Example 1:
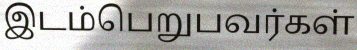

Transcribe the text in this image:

இடம்பெறுபவர்கள்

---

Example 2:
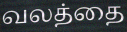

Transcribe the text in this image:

வலத்தை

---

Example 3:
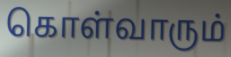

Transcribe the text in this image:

கொள்வாரும்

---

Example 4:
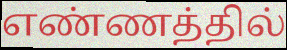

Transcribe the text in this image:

எண்ணத்தில்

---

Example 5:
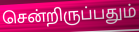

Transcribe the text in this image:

சென்றிருப்பதும்